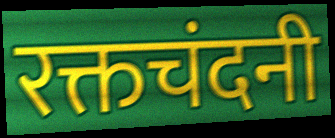
रक्तचंदनी